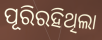
ପୂରିରହିଥିଲା